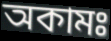
অকামঃ